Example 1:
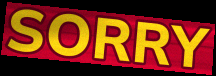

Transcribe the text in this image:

SORRY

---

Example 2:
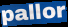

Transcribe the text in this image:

pallor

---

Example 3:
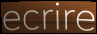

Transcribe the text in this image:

ecrire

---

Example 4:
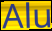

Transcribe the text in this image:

Alu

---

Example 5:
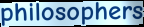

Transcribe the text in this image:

philosophers